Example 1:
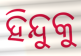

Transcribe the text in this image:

ହିନ୍ଦୁକୁ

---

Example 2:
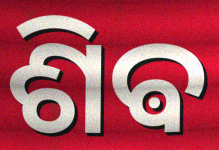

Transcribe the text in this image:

ଶିଵ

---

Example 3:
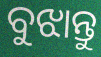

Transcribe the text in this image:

ବୁଝାନ୍ତୁ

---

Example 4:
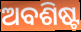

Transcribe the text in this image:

ଅବଶିଷ୍ଟ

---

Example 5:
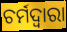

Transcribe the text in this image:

ଚର୍ମଦ୍ଵାରା